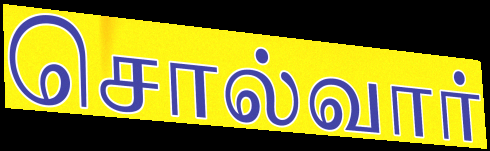
சொல்வார்